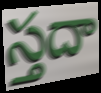
స్తదా